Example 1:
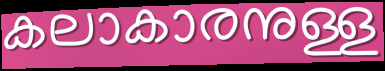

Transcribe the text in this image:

കലാകാരനുള്ള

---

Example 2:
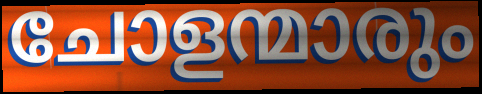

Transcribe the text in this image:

ചോളന്മാരും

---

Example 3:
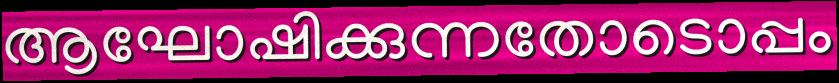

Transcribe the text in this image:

ആഘോഷിക്കുന്നതോടൊപ്പം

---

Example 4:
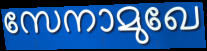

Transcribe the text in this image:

സേനാമുഖേ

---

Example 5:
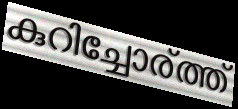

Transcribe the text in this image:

കുറിച്ചോര്ത്ത്